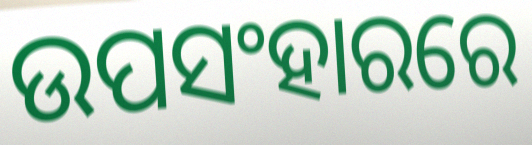
ଉପସଂହାରରେ